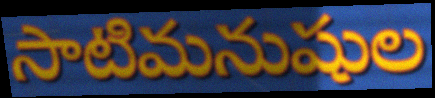
సాటిమనుషుల